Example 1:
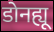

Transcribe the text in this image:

डोनह्यू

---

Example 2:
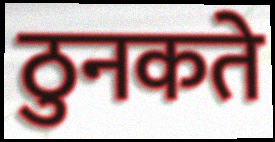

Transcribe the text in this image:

ठुनकते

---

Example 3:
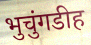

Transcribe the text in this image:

भुचुंगडीह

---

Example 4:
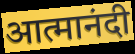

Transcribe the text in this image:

आत्मानंदी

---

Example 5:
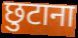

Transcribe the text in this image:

छुटाना